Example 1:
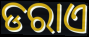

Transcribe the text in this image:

ଡରାଏ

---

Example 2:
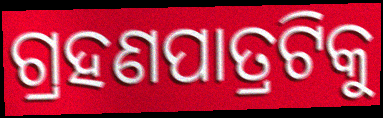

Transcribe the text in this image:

ଗ୍ରହଣପାତ୍ରଟିକୁ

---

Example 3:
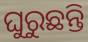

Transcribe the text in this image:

ଘୁରୁଛନ୍ତି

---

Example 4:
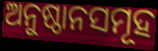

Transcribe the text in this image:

ଅନୁଷ୍ଠାନସମୂହ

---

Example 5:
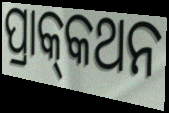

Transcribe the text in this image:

ପ୍ରାକ୍‍କଥନ